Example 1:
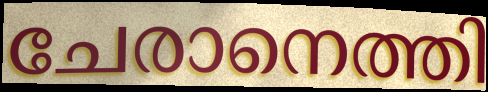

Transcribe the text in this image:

ചേരാനെത്തി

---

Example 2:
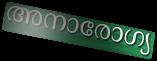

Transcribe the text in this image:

അനാരോഗ്യ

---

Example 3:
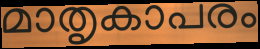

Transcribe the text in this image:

മാതൃകാപരം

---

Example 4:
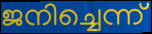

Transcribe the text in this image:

ജനിച്ചെന്ന്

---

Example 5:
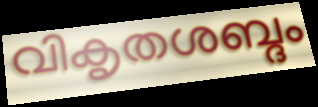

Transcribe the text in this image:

വികൃതശബ്ദം